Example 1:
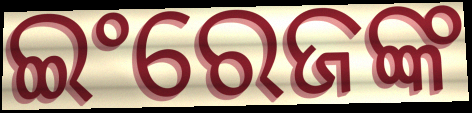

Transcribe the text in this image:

ଇଂରେଜଙ୍କ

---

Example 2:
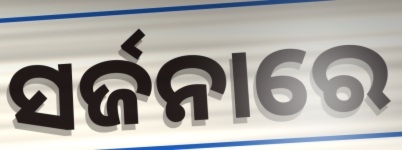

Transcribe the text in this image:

ସର୍ଜନାରେ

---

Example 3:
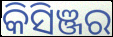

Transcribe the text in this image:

କିସିଞ୍ଜର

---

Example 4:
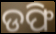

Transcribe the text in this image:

ଡଫି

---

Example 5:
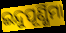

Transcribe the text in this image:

ଇନ୍ଦୁପୂର୍ଣ୍ଣିମା